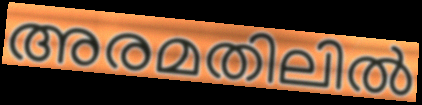
അരമതിലിൽ